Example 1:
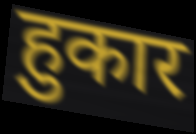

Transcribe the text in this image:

हुकार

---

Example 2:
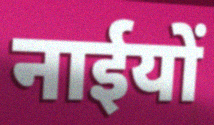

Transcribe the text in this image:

नाईयों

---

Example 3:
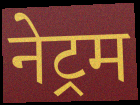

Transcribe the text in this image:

नेट्रम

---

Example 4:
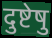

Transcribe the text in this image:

दुष्टेषु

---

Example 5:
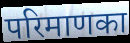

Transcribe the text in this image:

परिमाणका